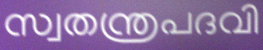
സ്വതന്ത്രപദവി